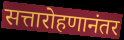
सत्तारोहणानंतर